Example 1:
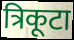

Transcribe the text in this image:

त्रिकूटा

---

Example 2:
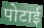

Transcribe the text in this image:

पोटाई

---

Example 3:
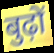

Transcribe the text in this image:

बुढ़ों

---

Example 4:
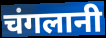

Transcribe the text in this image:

चंगलानी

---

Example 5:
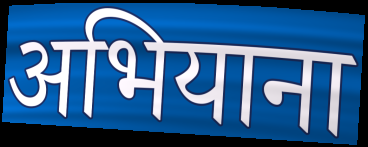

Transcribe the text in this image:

अभियाना